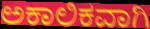
ಅಕಾಲಿಕವಾಗಿ